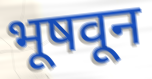
भूषवून